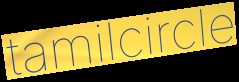
tamilcircle